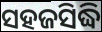
ସହଜସିଦ୍ଧି